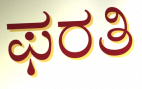
ಫರತಿ